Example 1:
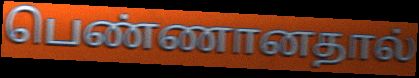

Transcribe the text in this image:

பெண்ணானதால்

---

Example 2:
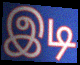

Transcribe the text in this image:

இடி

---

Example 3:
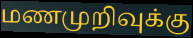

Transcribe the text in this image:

மணமுறிவுக்கு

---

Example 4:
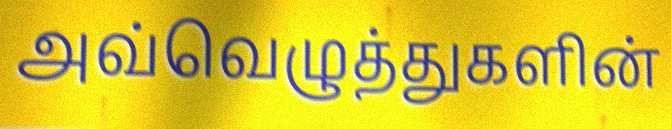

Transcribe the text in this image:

அவ்வெழுத்துகளின்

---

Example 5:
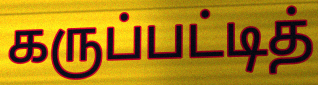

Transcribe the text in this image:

கருப்பட்டித்